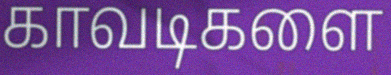
காவடிகளை